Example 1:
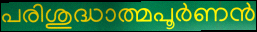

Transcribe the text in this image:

പരിശുദ്ധാത്മപൂർണൻ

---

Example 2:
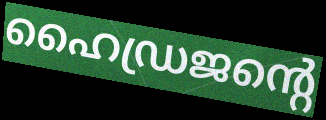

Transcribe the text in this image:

ഹൈഡ്രജന്റെ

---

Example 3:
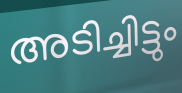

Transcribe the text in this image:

അടിച്ചിട്ടും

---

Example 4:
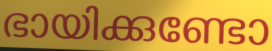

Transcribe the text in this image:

ഭായിക്കുണ്ടോ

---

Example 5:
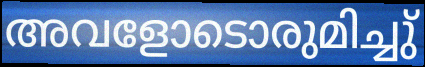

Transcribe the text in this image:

അവളോടൊരുമിച്ചു്